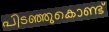
പിടഞ്ഞുകൊണ്ട്